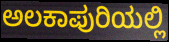
ಅಲಕಾಪುರಿಯಲ್ಲಿ